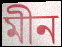
মীন